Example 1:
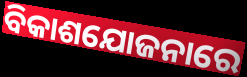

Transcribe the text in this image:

ବିକାଶଯୋଜନାରେ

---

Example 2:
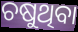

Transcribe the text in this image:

ଚଷୁଥିବା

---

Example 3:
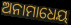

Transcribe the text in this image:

ଅନାମାଧେୟ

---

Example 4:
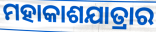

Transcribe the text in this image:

ମହାକାଶଯାତ୍ରାର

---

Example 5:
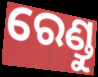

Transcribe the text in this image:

ରେଣ୍ଡୁ